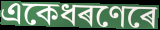
একেধৰণেৰে